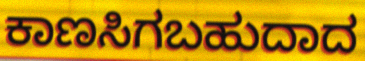
ಕಾಣಸಿಗಬಹುದಾದ